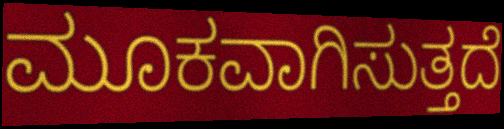
ಮೂಕವಾಗಿಸುತ್ತದೆ